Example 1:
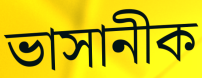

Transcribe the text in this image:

ভাসানীক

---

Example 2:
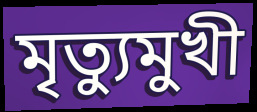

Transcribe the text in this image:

মৃত্যুমুখী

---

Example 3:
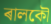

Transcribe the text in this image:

ৰালকৌ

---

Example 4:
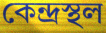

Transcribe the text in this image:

কেন্দ্ৰস্থল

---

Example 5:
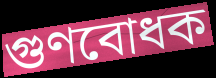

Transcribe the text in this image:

গুণবোধক